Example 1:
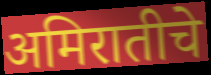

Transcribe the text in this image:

अमिरातीचे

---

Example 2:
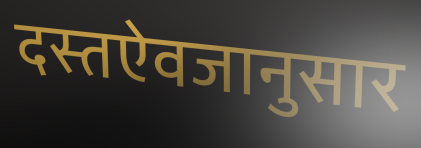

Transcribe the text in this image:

दस्तऐवजानुसार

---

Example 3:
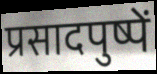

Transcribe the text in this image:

प्रसादपुष्पें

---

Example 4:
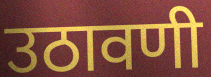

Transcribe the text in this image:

उठावणी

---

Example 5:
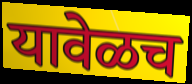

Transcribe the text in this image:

यावेळच